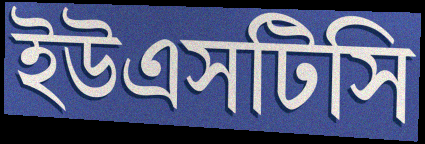
ইউএসটিসি